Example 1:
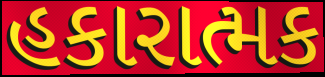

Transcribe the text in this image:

હકારાત્મક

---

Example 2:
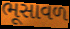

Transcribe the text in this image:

ભૂસાવળ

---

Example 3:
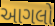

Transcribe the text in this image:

આગલો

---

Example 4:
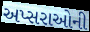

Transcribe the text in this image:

અપ્સરાઓની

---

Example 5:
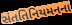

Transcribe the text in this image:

સંતતિનિયમનના